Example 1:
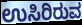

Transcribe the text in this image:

ಉಸಿರಿರುವ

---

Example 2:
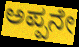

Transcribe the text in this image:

ಅಪ್ಪನೇ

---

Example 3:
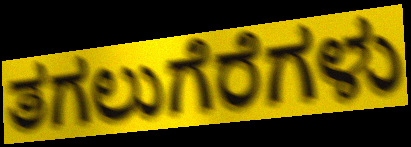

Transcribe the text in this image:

ತಗಲುಗೆರೆಗಳು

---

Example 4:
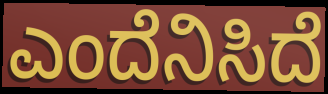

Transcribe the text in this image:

ಎಂದೆನಿಸಿದೆ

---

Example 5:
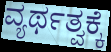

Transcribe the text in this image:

ವ್ಯರ್ಥತ್ವಕ್ಕೆ